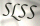
SLSS